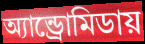
অ্যান্ড্রোমিডায়